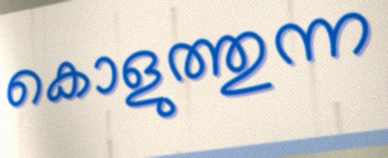
കൊളുത്തുന്ന